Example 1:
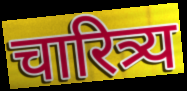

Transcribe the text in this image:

चारित्र्य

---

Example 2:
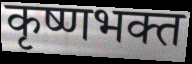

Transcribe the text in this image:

कृष्णभक्त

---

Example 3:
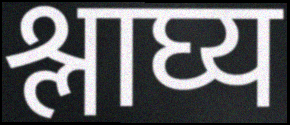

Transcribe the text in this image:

श्लाघ्य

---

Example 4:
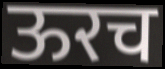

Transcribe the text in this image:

ऊरच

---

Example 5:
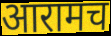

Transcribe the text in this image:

आरामच